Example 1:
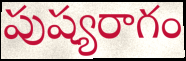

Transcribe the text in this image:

పుష్యరాగం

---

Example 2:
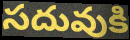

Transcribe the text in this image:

సదువుకి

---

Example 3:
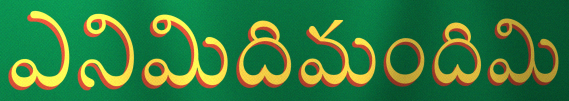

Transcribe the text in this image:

ఎనిమిదిమందిమి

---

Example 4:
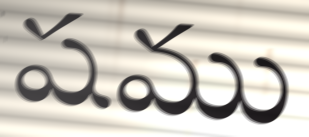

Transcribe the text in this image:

షము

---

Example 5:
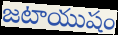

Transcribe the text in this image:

జటాయుషం